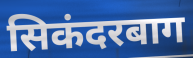
सिकंदरबाग